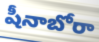
షీనాబోరా